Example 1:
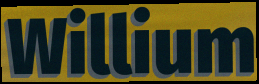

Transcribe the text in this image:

Willium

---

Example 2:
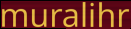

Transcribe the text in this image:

muralihr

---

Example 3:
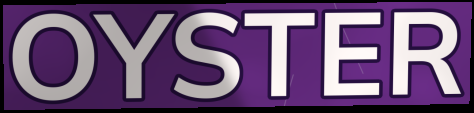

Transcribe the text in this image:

OYSTER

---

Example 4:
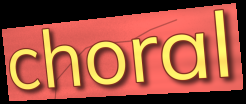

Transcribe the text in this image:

choral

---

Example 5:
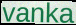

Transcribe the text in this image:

vanka